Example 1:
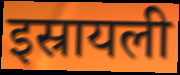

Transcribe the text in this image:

इस्रायली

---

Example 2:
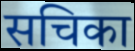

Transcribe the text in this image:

सचिका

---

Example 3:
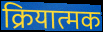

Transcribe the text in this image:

क्रियात्‍मक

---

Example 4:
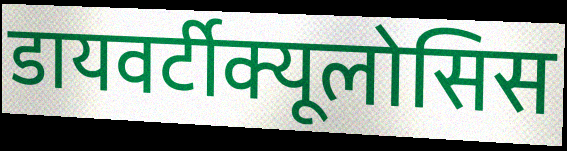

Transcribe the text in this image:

डायवर्टीक्यूलोसिस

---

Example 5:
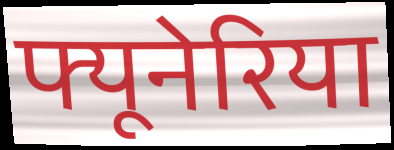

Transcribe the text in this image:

फ्यूनेरिया